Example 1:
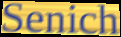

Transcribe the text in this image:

Senich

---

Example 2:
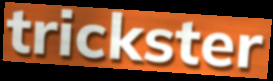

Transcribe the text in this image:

trickster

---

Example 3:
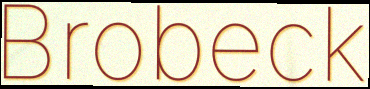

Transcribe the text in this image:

Brobeck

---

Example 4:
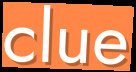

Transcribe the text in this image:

clue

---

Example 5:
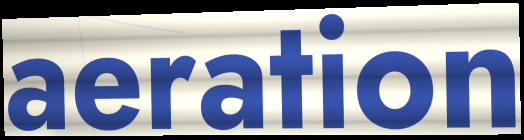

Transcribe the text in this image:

aeration